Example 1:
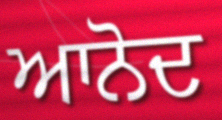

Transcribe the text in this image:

ਆਨੋਦ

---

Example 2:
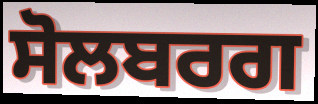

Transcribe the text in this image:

ਸੋਲਬਰਗ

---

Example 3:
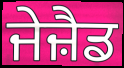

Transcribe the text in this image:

ਜੇਜ਼ੈਡ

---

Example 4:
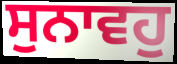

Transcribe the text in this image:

ਸੁਨਾਵਹੁ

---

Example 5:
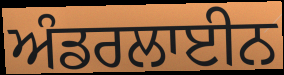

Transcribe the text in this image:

ਅੰਡਰਲਾਈਨ